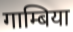
गाम्बिया